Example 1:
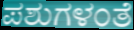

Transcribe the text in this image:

ಪಶುಗಳಂತೆ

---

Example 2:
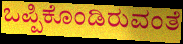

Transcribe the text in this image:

ಒಪ್ಪಿಕೊಂಡಿರುವಂತೆ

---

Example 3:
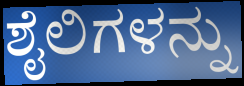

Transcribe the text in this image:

ಶೈಲಿಗಳನ್ನು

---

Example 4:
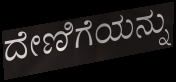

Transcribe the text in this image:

ದೇಣಿಗೆಯನ್ನು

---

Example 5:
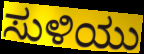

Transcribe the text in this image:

ಸುಳಿಯು